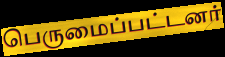
பெருமைப்பட்டனர்